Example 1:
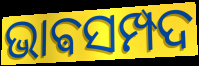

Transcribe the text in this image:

ଭାଵସମ୍ପଦ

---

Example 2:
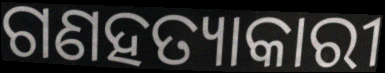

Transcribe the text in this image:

ଗଣହତ୍ୟାକାରୀ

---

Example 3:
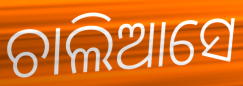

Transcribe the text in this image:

ଚାଲିଆସେ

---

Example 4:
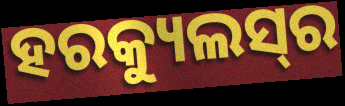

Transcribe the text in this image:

ହରକ୍ୟୁଲସ୍‍ର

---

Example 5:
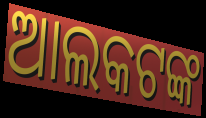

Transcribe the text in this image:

ଆଲକଟଙ୍କ